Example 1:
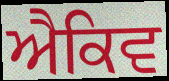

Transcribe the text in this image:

ਐਕਿਵ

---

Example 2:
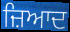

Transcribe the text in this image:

ਜ਼ਿਆਦ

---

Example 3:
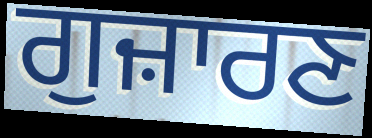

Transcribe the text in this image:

ਗੁਜ਼ਾਰਣ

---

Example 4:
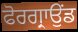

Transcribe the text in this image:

ਫੋਰਗ੍ਰਾਉਂਡ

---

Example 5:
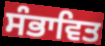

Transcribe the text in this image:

ਸੰਭਾਵਿਤ